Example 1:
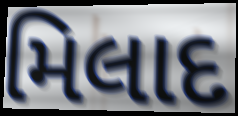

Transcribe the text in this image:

મિલાદ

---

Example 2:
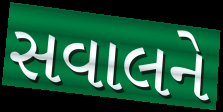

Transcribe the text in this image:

સવાલને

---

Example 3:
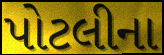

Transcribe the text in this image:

પોટલીના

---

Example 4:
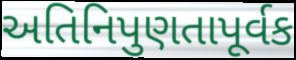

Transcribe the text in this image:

અતિનિપુણતાપૂર્વક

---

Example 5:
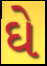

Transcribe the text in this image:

ઘે